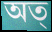
অত্